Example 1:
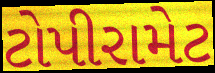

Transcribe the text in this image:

ટોપીરામેટ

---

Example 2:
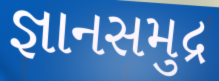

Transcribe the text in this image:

જ્ઞાનસમુદ્ર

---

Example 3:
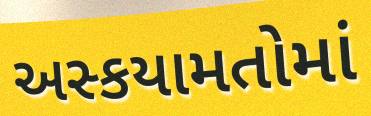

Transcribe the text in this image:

અસ્કયામતોમાં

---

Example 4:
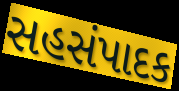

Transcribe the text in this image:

સહસંપાદક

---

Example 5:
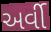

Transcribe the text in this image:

અર્વી